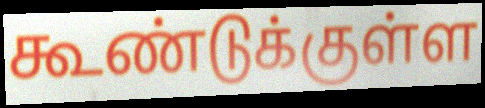
கூண்டுக்குள்ள